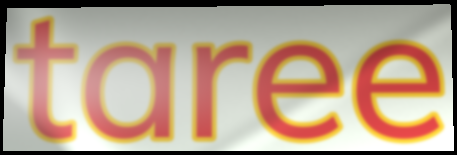
taree